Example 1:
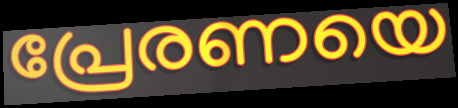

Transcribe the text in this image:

പ്രേരണയെ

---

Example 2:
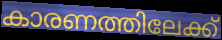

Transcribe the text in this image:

കാരണത്തിലേക്ക്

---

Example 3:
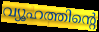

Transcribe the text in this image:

വ്യൂഹത്തിന്റെ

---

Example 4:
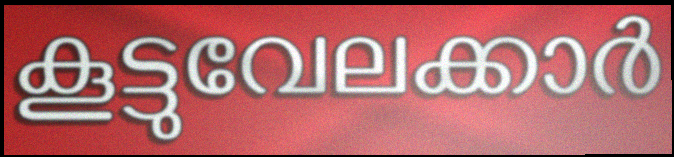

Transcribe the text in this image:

കൂട്ടുവേലക്കാർ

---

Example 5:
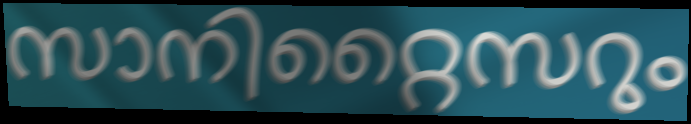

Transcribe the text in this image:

സാനിറ്റൈസറും